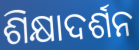
ଶିକ୍ଷାଦର୍ଶନ